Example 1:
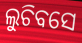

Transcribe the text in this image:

ଲୁଚିବସେ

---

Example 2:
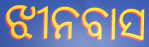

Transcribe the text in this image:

ଝୀନବାସ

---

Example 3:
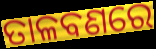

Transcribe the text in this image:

ତାଳବଣରେ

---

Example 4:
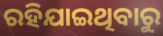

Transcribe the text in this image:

ରହିଯାଇଥିବାରୁ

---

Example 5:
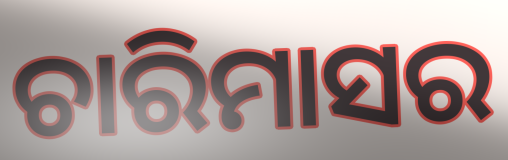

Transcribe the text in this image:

ଚାରିମାସର